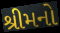
શ્રીમનો